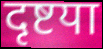
दृष्टया